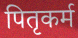
पितृकर्म